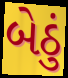
બેઠું